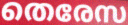
തെരേസ